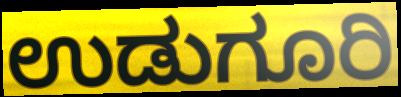
ಉಡುಗೂರಿ